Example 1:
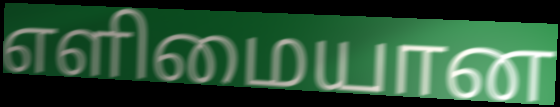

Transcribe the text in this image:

எளிமையான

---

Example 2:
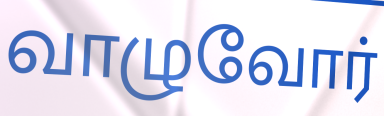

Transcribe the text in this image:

வாழுவோர்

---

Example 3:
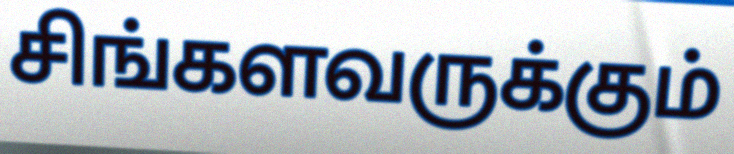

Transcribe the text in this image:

சிங்களவருக்கும்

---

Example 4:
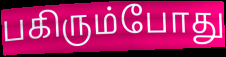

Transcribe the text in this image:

பகிரும்போது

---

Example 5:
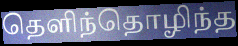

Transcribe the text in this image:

தெளிந்தொழிந்த